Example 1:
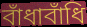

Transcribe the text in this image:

বাঁধাবাঁধি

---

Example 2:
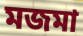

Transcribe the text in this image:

মজমা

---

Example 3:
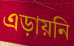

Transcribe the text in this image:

এড়ায়নি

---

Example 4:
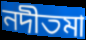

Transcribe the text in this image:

নদীতমা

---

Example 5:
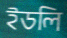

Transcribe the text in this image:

ইডলি